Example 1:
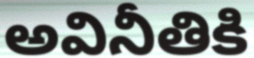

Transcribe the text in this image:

అవినీతికి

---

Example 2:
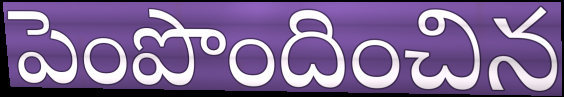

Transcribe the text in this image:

పెంపొందించిన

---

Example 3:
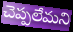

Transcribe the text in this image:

చెప్పలేమని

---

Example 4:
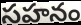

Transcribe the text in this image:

సహనం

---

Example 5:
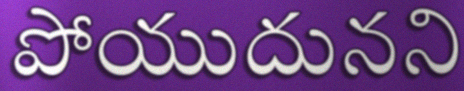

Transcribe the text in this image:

పోయుదునని